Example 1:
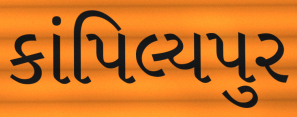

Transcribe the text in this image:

કાંપિલ્યપુર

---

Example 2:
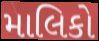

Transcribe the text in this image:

માલિકો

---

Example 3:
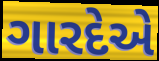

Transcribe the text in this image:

ગારદેએ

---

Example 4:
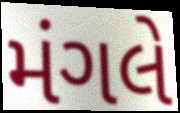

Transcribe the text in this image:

મંગલે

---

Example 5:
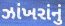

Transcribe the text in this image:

ઝાંખરાંનું